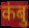
कंबु